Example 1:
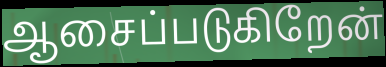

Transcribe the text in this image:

ஆசைப்படுகிறேன்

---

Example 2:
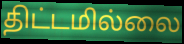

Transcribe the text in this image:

திட்டமில்லை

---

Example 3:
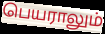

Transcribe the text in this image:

பெயராலும்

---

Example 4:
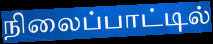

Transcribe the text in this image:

நிலைப்பாட்டில்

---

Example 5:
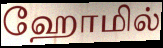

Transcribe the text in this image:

ஹோமில்